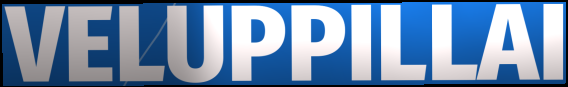
VELUPPILLAI